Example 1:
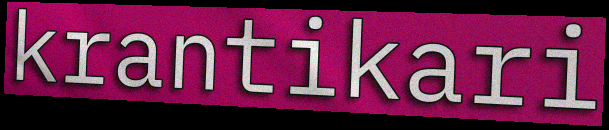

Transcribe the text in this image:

krantikari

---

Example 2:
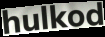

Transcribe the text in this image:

hulkod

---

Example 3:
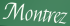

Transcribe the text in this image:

Montrez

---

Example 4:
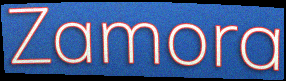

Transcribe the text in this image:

Zamora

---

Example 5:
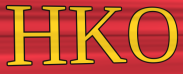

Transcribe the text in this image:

HKO